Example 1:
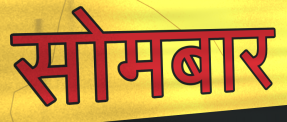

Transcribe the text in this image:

सोमबार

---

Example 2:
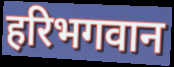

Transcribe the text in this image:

हरिभगवान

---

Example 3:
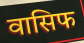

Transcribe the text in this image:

वासिफ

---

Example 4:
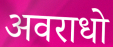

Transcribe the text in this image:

अवराधो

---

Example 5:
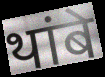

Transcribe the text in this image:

थांबे